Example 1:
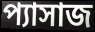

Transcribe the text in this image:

প্যাসাজ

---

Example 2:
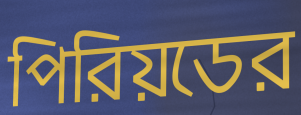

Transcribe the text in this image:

পিরিয়ডের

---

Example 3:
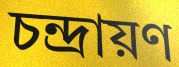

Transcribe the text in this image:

চন্দ্রায়ণ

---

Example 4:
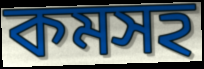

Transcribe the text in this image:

কমসহ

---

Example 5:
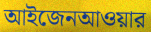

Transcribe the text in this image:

আইজেনআওয়ার